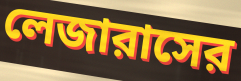
লেজারাসের